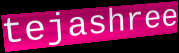
tejashree